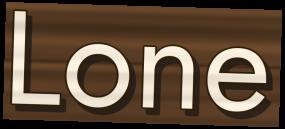
Lone